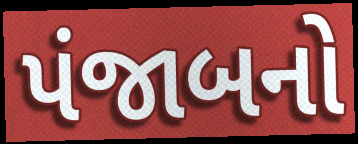
પંજાબનો